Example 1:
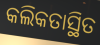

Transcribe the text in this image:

କଲିକତାସ୍ଥିତ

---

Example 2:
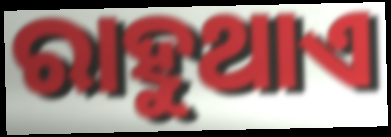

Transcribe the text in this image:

ରାହୁଥାଏ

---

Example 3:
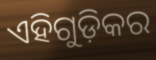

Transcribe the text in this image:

ଏହିଗୁଡ଼ିକର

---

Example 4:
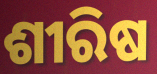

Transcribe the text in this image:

ଶୀରିଷ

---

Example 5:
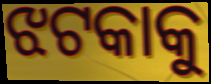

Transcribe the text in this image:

ଝଟକାକୁ